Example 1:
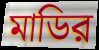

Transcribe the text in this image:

মাডির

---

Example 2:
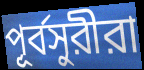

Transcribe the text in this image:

পূর্বসুরীরা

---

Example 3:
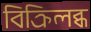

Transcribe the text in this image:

বিক্রিলব্ধ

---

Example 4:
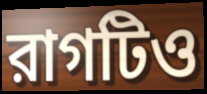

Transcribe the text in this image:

রাগটিও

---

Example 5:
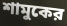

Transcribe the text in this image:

শামুকের